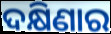
ଦକ୍ଷିଣାର